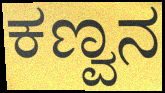
ಕಣ್ವನ